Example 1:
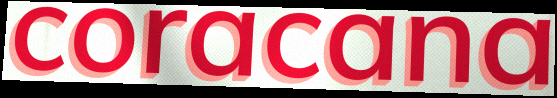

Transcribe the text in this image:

coracana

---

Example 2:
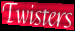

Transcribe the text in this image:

Twisters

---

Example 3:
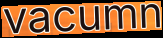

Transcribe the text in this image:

vacumn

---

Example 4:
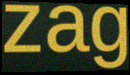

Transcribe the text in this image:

zag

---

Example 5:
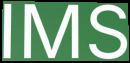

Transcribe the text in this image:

IMS